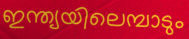
ഇന്ത്യയിലെമ്പാടും